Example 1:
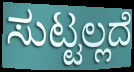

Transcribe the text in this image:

ಸುಟ್ಟಲ್ಲದೆ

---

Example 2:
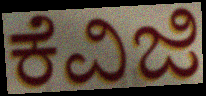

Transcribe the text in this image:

ಕೆವಿಜಿ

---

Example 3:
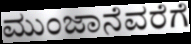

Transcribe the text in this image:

ಮುಂಜಾನೆವರೆಗೆ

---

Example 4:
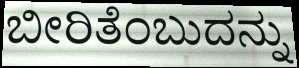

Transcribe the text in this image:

ಬೀರಿತೆಂಬುದನ್ನು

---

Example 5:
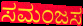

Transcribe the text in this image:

ಸಮಂಜಸ